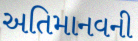
અતિમાનવની